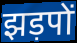
झड़पों